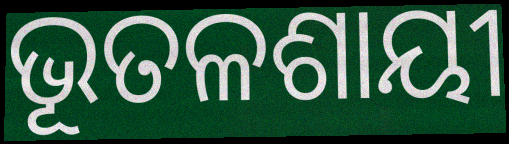
ଭୂତଳଶାୟୀ